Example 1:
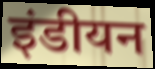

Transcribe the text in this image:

इंडीयन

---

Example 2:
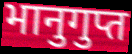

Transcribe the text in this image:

भानुगुप्त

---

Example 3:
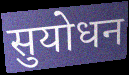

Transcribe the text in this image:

सुयोधन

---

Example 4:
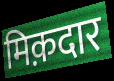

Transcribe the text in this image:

मिक़दार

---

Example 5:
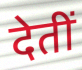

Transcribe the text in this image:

देतीं